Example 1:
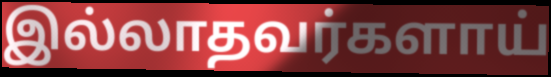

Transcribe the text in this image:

இல்லாதவர்களாய்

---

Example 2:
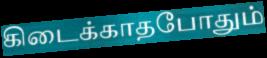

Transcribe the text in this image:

கிடைக்காதபோதும்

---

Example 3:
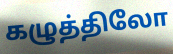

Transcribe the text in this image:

கழுத்திலோ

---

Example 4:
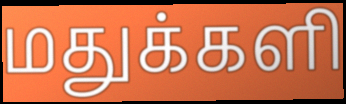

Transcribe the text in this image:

மதுக்களி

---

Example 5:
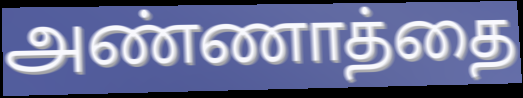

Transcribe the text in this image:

அண்ணாத்தை